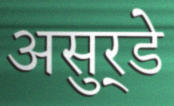
असुर्डे